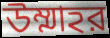
উম্মাহর